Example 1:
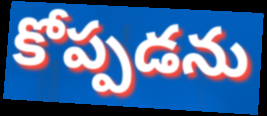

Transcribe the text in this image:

కోప్పడను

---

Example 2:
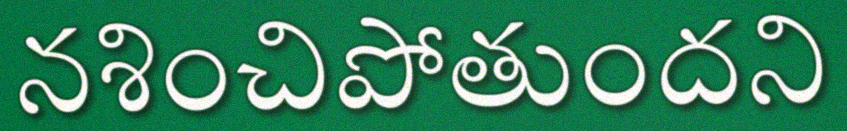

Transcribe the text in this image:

నశించిపోతుందని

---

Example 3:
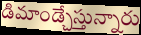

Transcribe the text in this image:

డిమాండ్చేస్తున్నారు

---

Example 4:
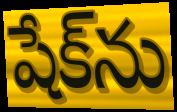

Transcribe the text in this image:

షేక్‌ను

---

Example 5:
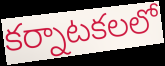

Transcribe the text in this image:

కర్నాటకలలో